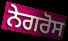
ਨੇਗਰੋਸ